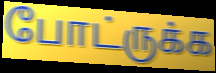
போட்ருக்க